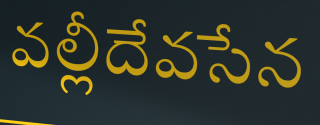
వల్లీదేవసేన